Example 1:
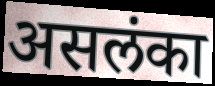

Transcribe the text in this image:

असलंका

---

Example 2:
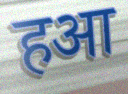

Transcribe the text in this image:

हआ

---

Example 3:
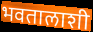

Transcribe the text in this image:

भवतालाशी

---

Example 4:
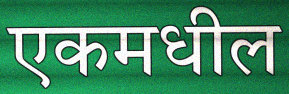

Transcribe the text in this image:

एकमधील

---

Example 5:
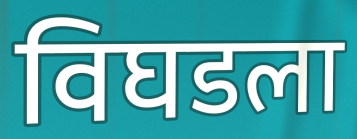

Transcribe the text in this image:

विघडला